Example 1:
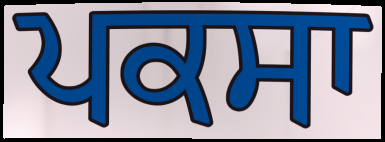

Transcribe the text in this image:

ਪਕਸਾ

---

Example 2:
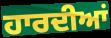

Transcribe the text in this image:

ਹਾਰਦੀਆਂ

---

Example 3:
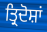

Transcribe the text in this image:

ਤ੍ਰਿਦੋਸ਼ਾਂ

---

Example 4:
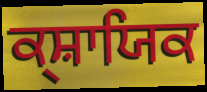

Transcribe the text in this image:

ਕ੍ਸ਼ਾਯਿਕ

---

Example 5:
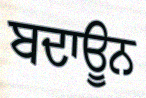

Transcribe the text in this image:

ਬਦਾਊਨ